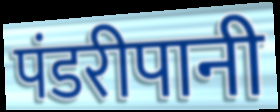
पंडरीपानी